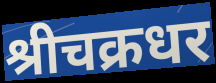
श्रीचक्रधर